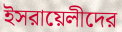
ইসরায়েলীদের